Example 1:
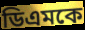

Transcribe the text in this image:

ডিএমকে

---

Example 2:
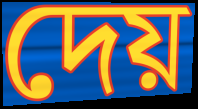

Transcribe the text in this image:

দেয়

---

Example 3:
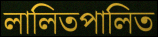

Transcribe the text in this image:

লালিতপালিত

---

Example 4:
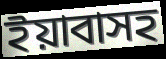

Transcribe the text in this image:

ইয়াবাসহ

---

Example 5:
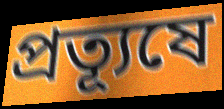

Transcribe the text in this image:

প্রত্যূষে